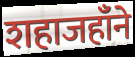
शहाजहाँने